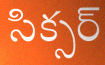
సిక్సర్